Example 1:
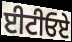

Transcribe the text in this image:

ਈਟੀਓਏ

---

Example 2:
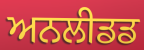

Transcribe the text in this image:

ਅਨਲੀਡਡ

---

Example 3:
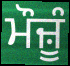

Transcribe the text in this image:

ਮੌਜ਼ੂੰ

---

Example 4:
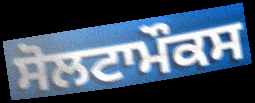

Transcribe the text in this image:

ਸੋਲਟਾਮੌਕਸ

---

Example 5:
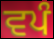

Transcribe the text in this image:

ਵਪੰ